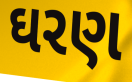
ઘરણ